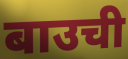
बाउची